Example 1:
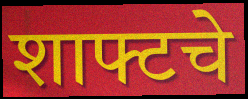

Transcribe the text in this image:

शाफ्टचे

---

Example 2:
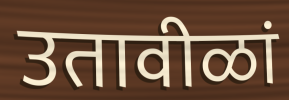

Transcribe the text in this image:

उतावीळां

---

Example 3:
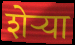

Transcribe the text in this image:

शेऱ्या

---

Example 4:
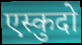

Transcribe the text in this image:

एस्कुदो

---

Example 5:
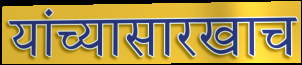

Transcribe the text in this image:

यांच्यासारखाच